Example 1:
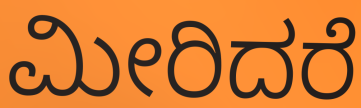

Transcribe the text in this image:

ಮೀರಿದರೆ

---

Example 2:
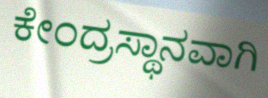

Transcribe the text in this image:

ಕೇಂದ್ರಸ್ಥಾನವಾಗಿ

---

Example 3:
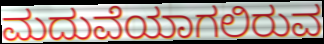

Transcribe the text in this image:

ಮದುವೆಯಾಗಲಿರುವ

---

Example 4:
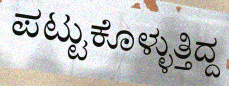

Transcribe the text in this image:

ಪಟ್ಟುಕೊಳ್ಳುತ್ತಿದ್ದ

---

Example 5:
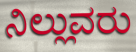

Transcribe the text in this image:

ನಿಲ್ಲುವರು